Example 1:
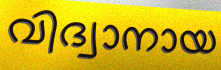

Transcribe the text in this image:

വിദ്വാനായ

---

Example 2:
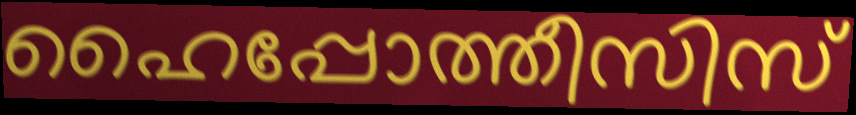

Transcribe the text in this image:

ഹൈപ്പോത്തീസിസ്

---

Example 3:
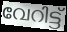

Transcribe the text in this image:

വേറിട്ട്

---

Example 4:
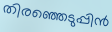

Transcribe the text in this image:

തിരഞ്ഞെടുപ്പിൻ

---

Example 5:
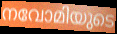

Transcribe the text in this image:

നവോമിയുടെ